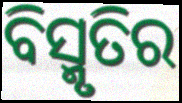
ବିସ୍ମୃତିର